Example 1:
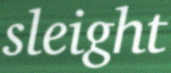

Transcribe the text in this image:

sleight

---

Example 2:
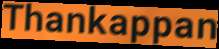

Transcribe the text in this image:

Thankappan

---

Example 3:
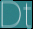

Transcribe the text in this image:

Dt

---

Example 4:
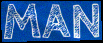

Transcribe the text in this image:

MAN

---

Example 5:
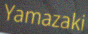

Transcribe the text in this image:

Yamazaki